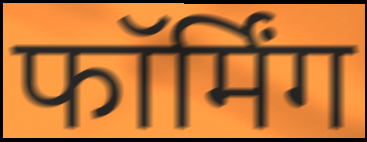
फॉर्मिंग